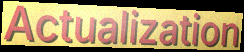
Actualization